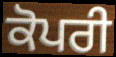
ਕੋਪਰੀ